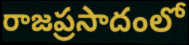
రాజప్రసాదంలో